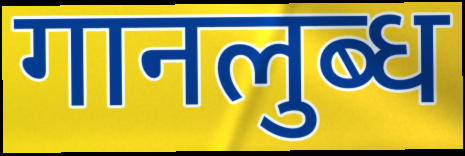
गानलुब्ध